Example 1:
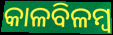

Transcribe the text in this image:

କାଳବିଳମ୍ବ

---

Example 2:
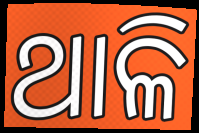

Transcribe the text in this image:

ଥାଳି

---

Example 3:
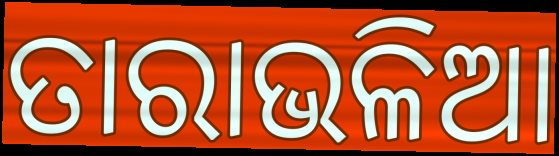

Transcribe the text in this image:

ତାରାଭଳିଆ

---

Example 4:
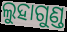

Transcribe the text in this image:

ଲୁହାଗୁଣ୍ଡ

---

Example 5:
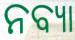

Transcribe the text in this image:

ନବ୍ୟା